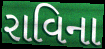
રાવિના